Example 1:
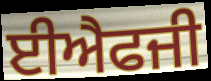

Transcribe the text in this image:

ਈਐਫਜੀ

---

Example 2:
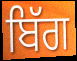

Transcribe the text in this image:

ਬਿੱਗ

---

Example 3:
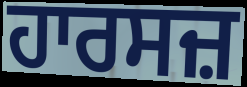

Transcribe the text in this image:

ਹਾਰਸਜ਼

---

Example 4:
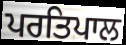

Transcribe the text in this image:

ਪਰਤਿਪਾਲ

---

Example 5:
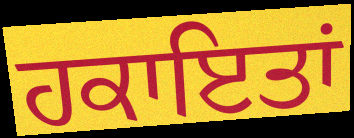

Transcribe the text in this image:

ਹਕਾਇਤਾਂ